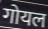
गोयल